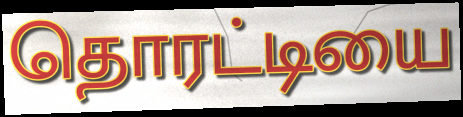
தொரட்டியை